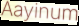
Aayinum